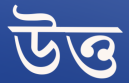
উত্ত